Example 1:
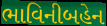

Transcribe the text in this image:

ભાવિનીબહેન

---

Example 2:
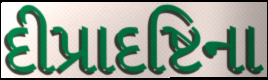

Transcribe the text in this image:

દીપ્રાદષ્ટિના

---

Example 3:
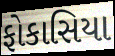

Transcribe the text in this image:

ફોકાસિયા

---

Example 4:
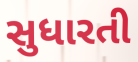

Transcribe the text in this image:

સુધારતી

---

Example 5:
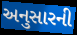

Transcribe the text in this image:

અનુસારની